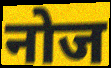
नोज